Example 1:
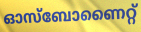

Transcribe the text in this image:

ഓസ്ബോണൈറ്റ്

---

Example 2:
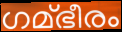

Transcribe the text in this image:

ഗമ്ഭീരം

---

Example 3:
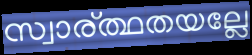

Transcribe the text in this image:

സ്വാര്ത്ഥതയല്ലേ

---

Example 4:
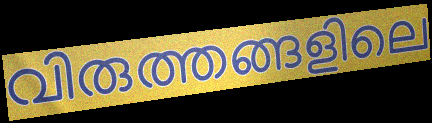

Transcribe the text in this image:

വിരുത്തങ്ങളിലെ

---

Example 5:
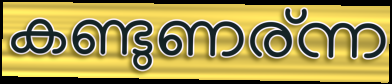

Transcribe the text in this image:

കണ്ടുണര്ന്ന